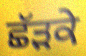
ਛੱੜਕੇ